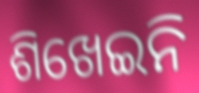
ଶିଖେଇନି